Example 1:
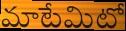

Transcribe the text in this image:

మాటేమిటో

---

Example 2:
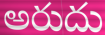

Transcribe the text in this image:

అరుదు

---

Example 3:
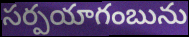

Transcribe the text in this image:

సర్పయాగంబును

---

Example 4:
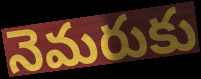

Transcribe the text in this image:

నెమరుకు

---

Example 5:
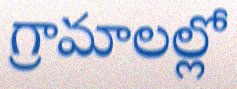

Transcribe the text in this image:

గ్రామాలల్లో